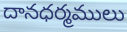
దానధర్మములు